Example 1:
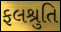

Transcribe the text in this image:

ફલશ્રુતિ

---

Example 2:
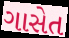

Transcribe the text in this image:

ગાસેત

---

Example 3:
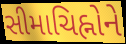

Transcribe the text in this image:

સીમાચિહ્નોને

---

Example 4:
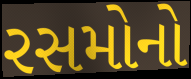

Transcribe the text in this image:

રસમોનો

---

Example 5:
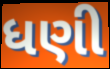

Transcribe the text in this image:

ધણી